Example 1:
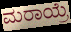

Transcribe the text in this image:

ಮರಾಯ್ರೆ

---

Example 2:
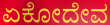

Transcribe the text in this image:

ಏಕೋದೇವ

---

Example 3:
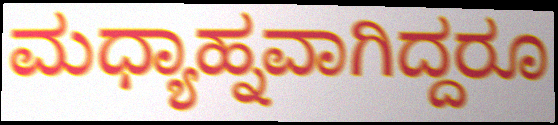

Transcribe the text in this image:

ಮಧ್ಯಾಹ್ನವಾಗಿದ್ದರೂ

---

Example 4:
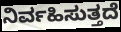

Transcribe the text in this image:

ನಿರ್ವಹಿಸುತ್ತದೆ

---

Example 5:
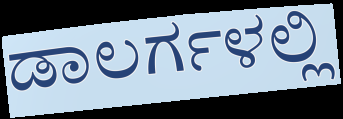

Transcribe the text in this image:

ಡಾಲರ್ಗಳಲ್ಲಿ